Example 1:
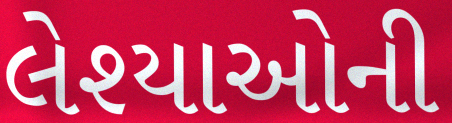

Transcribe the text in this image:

લેશ્યાઓની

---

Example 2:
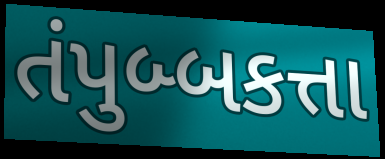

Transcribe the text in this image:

તંપુબ્બકત્તા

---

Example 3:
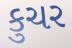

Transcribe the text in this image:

કુચર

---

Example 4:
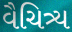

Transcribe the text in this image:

વૈચિત્ર્ય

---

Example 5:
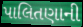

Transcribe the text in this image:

પાલિતણાની